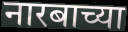
नारबाच्या